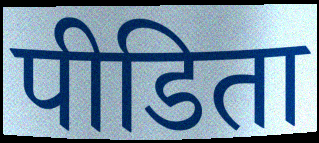
पीडिता